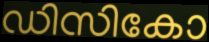
ഡിസികോ